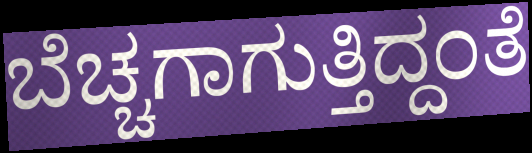
ಬೆಚ್ಚಗಾಗುತ್ತಿದ್ದಂತೆ